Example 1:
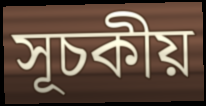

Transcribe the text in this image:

সূচকীয়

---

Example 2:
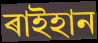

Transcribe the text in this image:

ৰাইহান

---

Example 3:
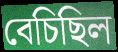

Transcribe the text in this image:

বেচিছিল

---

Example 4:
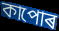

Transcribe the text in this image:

কাপোৰ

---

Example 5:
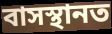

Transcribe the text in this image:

বাসস্থানত